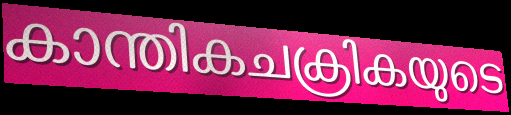
കാന്തികചക്രികയുടെ